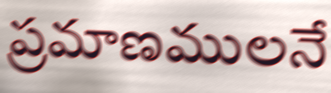
ప్రమాణములనే